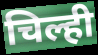
चिल्ही